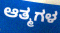
ಆತ್ಮಗಳ